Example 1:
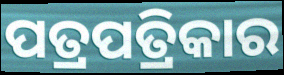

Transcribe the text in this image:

ପତ୍ରପତ୍ରିକାର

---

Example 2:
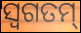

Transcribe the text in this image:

ସ୍ୱଗତମ୍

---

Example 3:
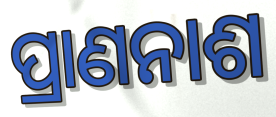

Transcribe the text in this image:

ପ୍ରାଣନାଶ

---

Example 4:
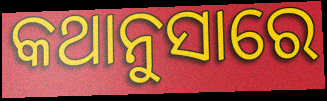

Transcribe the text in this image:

କଥାନୁସାରେ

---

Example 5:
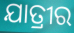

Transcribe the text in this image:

ଯାତ୍ରୀର